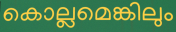
കൊല്ലമെങ്കിലും